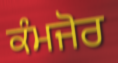
ਕੰਮਜੋਰ